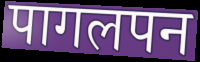
पागलपन